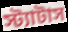
স্ট্যাটাস